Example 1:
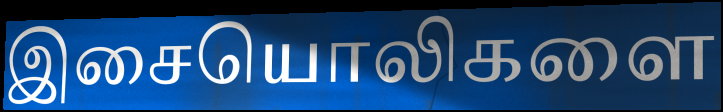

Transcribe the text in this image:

இசையொலிகளை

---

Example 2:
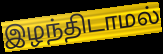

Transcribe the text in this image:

இழந்திடாமல்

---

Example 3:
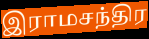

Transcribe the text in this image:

இராமசந்திர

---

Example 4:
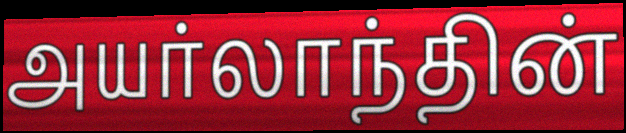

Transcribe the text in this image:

அயர்லாந்தின்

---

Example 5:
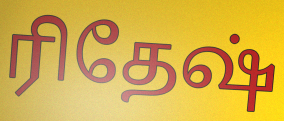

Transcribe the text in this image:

ரிதேஷ்